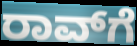
ರಾವ್‌ಗೆ